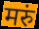
मरुं